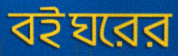
বইঘরের